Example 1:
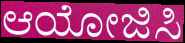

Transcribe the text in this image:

ಆಯೋಜಿಸಿ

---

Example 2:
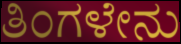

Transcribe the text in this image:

ತಿಂಗಳೇನು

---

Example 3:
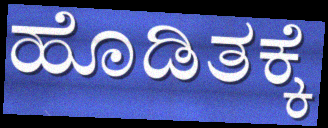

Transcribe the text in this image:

ಹೊಡಿತಕ್ಕೆ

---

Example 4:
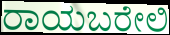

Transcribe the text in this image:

ರಾಯಬರೇಲಿ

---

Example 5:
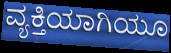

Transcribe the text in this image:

ವ್ಯಕ್ತಿಯಾಗಿಯೂ